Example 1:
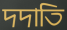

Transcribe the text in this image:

দদাতি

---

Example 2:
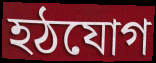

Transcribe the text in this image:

হঠযোগ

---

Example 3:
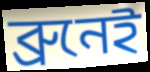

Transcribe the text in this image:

ব্রুনেই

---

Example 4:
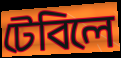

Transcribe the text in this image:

টেবিলে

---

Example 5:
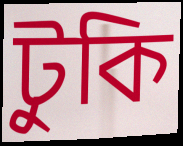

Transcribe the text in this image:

টুকি